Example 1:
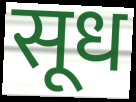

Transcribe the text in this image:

सूध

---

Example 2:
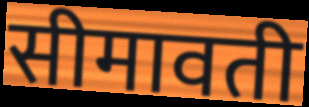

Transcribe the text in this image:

सीमावती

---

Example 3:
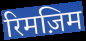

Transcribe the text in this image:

रिमज़िम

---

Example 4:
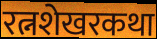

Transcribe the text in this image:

रत्नशेखरकथा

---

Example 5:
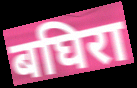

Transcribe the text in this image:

बघिरा